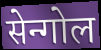
सेन्गोल